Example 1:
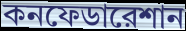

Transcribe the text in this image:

কনফেডারেশান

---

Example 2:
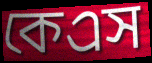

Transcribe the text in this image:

কেএস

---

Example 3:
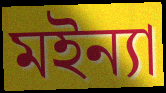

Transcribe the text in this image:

মইন্যা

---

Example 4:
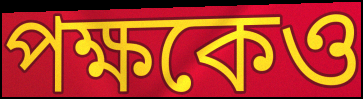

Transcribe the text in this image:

পক্ষকেও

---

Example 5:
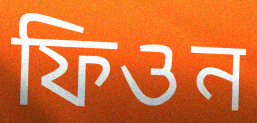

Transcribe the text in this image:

ফিওন